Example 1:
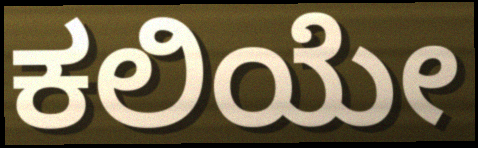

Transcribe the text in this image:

ಕಲಿಯೇ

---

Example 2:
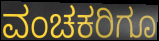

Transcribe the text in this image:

ವಂಚಕರಿಗೂ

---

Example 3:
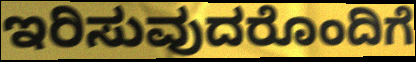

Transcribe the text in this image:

ಇರಿಸುವುದರೊಂದಿಗೆ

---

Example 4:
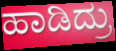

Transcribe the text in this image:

ಹಾಡಿದ್ರು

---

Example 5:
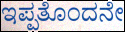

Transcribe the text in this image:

ಇಪ್ಪತೊಂದನೇ